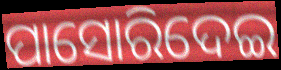
ପାସୋରିଦେଇ